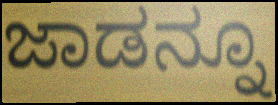
ಜಾಡನ್ನೂ